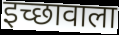
इच्छावाला